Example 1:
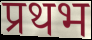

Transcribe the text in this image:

प्रथभ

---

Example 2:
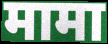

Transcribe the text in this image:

मामा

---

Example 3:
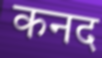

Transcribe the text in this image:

कनद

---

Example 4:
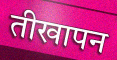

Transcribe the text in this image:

तीखापन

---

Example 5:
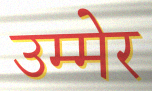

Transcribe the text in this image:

उम्मेर